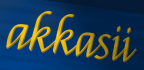
akkasii